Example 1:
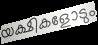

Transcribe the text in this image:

യക്ഷികളോടും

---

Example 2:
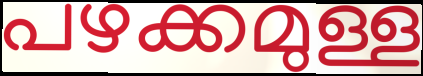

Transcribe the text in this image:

പഴക്കമുള്ള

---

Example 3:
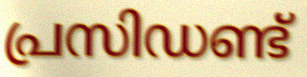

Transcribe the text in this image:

പ്രസിഡണ്ട്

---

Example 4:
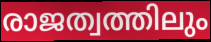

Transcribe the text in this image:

രാജത്വത്തിലും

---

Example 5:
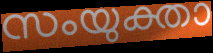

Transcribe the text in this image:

സംയുക്താ